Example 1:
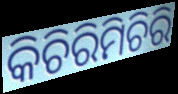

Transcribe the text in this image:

କିଚିରିମିଚିରି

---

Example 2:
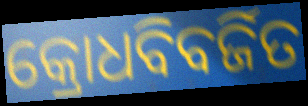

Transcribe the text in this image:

କ୍ରୋଧବିବର୍ଜିତ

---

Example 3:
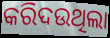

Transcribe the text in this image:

କରିଦଉଥିଲା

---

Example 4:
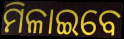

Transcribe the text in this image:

ମିଳାଇବେ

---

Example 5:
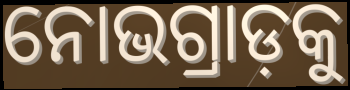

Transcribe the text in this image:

ନୋଭଗ୍ରାଡ଼କୁ